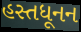
હસ્તધૂનન